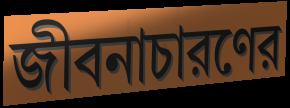
জীবনাচারণের